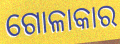
ଗୋଳାକାର